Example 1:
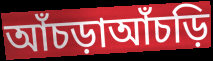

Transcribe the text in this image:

আঁচড়াআঁচড়ি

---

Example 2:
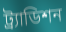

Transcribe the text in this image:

ট্র্যাডিশন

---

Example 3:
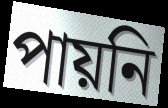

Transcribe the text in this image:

পায়নি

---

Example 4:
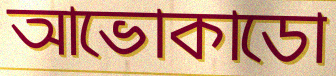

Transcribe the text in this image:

আভোকাডো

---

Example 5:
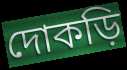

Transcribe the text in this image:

দোকড়ি